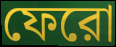
ফেরো